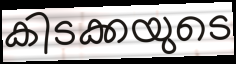
കിടക്കയുടെ